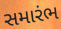
સમારંભ